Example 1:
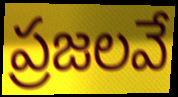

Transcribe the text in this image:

ప్రజలవే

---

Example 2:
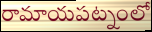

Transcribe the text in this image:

రామాయపట్నంలో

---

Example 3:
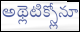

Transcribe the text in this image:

అథ్లెటిక్స్లోనూ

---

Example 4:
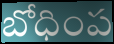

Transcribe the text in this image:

బోధింప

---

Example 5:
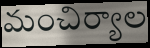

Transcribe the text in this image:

మంచిర్యాల